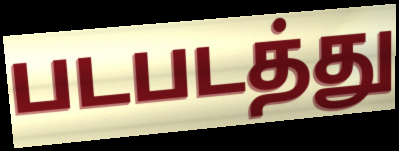
படபடத்து